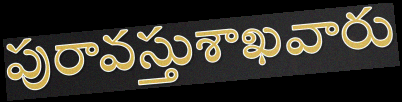
పురావస్తుశాఖవారు